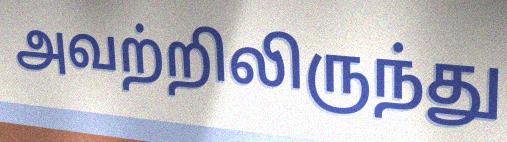
அவற்றிலிருந்து